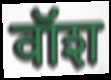
वॉश